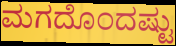
ಮಗದೊಂದಷ್ಟು